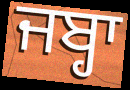
ਜਬ੍ਹਾ